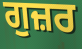
ਗੁਜ਼ਰ